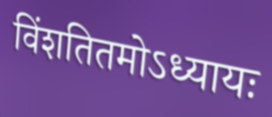
विंशतितमोऽध्यायः